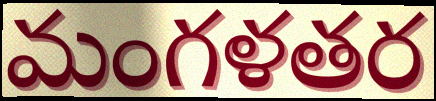
మంగళతర